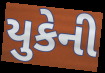
યુકેની